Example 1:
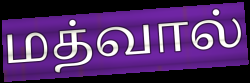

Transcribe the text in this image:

மத்வால்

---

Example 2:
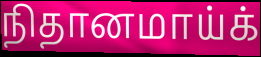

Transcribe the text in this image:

நிதானமாய்க்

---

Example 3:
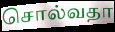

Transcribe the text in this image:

சொல்வதா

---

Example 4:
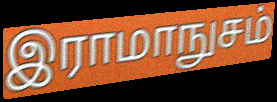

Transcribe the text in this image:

இராமாநுசம்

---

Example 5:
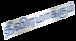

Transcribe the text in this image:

தீவிரமாக்கும்